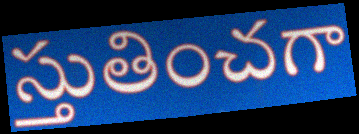
స్తుతించగా